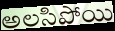
అలసిపోయి